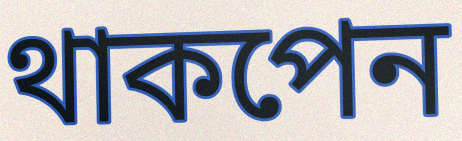
থাকপেন